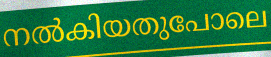
നൽകിയതുപോലെ